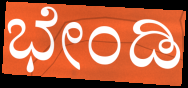
ಭೇಂಡಿ